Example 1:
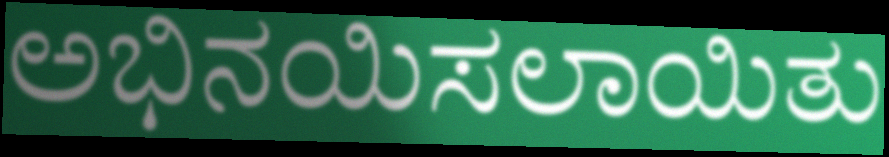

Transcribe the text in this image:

ಅಭಿನಯಿಸಲಾಯಿತು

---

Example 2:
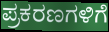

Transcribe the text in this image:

ಪ್ರಕರಣಗಳಿಗೆ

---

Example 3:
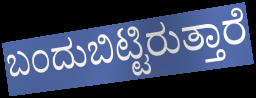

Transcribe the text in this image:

ಬಂದುಬಿಟ್ಟಿರುತ್ತಾರೆ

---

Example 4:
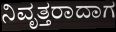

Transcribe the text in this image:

ನಿವೃತ್ತರಾದಾಗ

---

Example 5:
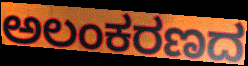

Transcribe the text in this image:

ಅಲಂಕರಣದ